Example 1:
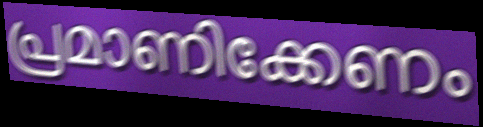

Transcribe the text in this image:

പ്രമാണിക്കേണം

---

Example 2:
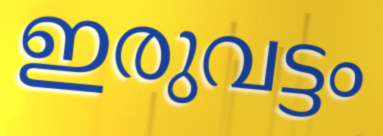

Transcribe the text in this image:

ഇരുവട്ടം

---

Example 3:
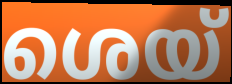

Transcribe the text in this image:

ശെയ്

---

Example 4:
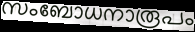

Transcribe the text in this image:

സംബോധനാരൂപം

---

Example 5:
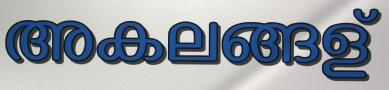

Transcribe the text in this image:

അകലങ്ങള്